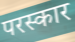
परस्कार